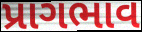
પ્રાગભાવ